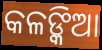
କଳଙ୍କିଆ